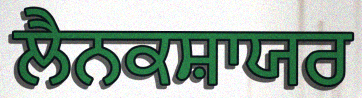
ਲੈਨਕਸ਼ਾਯਰ